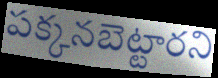
పక్కనబెట్టారని